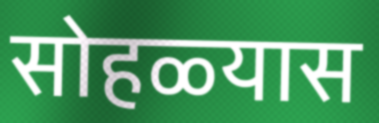
सोहळ्यास